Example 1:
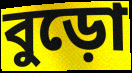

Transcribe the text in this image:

বুড়ো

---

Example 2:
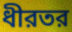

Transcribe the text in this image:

ধীরতর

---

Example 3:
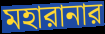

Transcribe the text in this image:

মহারানার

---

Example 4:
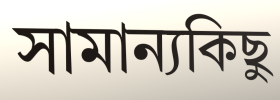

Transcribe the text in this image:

সামান্যকিছু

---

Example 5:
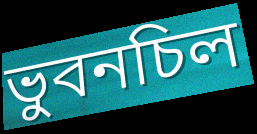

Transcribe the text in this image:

ভুবনচিল